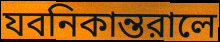
যবনিকান্তরালে